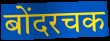
बोंदरचक